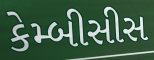
કેમ્બીસીસ